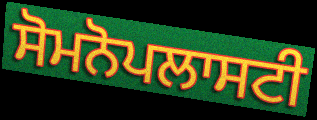
ਸੋਮਨੋਪਲਾਸਟੀ